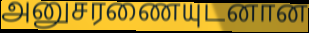
அனுசரணையுடனான